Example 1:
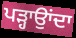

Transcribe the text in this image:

ਪੜ੍ਹਾਉਾਂਦਾ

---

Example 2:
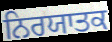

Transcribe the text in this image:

ਨਿਰਯਾਤਕ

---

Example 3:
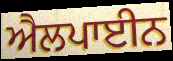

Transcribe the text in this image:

ਐਲਪਾਈਨ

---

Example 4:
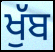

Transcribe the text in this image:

ਖੁੱਬ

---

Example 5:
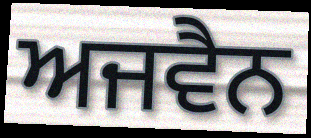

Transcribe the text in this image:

ਅਜਵੈਨ